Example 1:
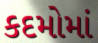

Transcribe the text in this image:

કદમોમાં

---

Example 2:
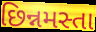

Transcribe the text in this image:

છિન્નમસ્તા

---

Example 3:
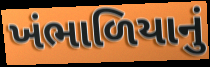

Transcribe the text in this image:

ખંભાળિયાનું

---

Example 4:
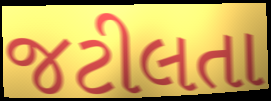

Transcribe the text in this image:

જટીલતા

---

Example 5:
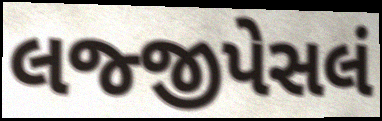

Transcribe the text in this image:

લજ્જીપેસલં